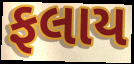
ફલાય